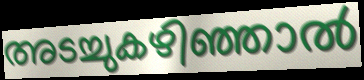
അടച്ചുകഴിഞ്ഞാൽ